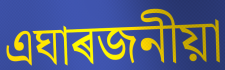
এঘাৰজনীয়া